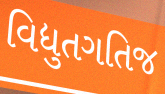
વિદ્યુતગતિજ